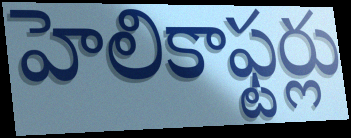
హెలికాఫ్టర్లు